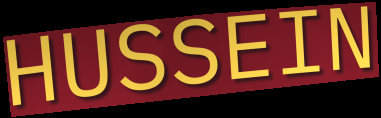
HUSSEIN